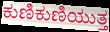
ಕುಣಿಕುಣಿಯುತ್ತ